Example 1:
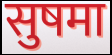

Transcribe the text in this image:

सुषमा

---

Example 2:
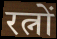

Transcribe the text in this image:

रत्नों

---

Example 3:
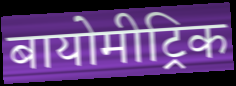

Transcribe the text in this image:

बायोमीट्रिक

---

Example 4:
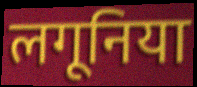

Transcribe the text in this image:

लगूनिया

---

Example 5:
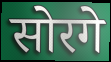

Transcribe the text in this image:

सोरगे